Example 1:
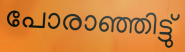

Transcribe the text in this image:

പോരാഞ്ഞിട്ടു്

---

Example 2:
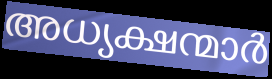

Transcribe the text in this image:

അധ്യക്ഷന്മാർ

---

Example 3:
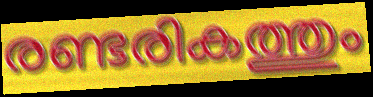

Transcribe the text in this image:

രണ്ടരികത്തും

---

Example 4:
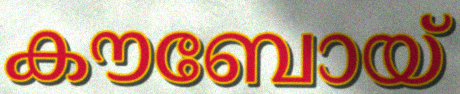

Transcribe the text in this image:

കൗബോയ്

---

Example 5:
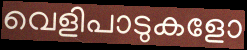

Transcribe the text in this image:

വെളിപാടുകളോ